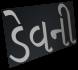
ડેવની